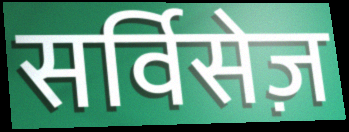
सर्विसेज़